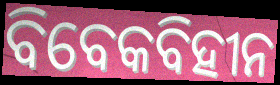
ବିବେକବିହୀନ